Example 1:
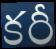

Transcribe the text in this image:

కరీ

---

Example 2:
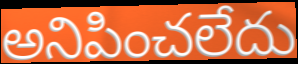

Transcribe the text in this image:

అనిపించలేదు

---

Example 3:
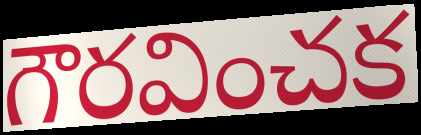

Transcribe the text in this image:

గౌరవించక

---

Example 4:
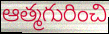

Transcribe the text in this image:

ఆత్మగురించి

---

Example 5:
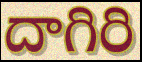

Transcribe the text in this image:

దాగిరి